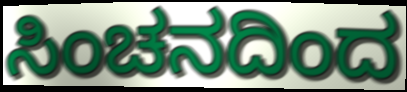
ಸಿಂಚನದಿಂದ